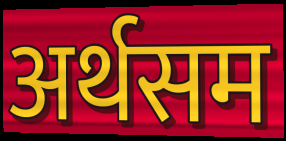
अर्थसम